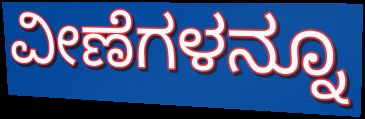
ವೀಣೆಗಳನ್ನೂ